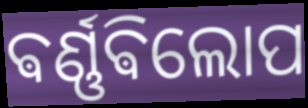
ଵର୍ଣ୍ଣଵିଲୋପ